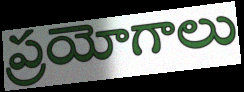
ప్రయోగాలు